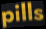
pills